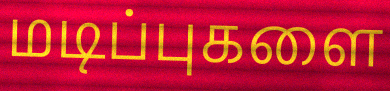
மடிப்புகளை